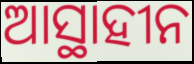
ଆସ୍ଥାହୀନ